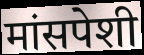
मांसपेशी